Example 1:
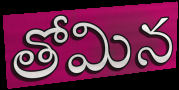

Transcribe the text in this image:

తోమిన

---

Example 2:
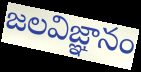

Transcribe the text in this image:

జలవిజ్ఞానం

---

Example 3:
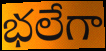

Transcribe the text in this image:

భలేగా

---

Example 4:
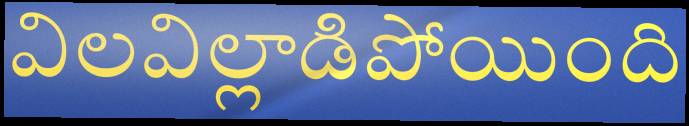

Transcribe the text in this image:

విలవిల్లాడిపోయింది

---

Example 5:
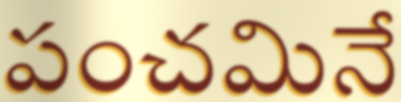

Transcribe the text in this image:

పంచమినే